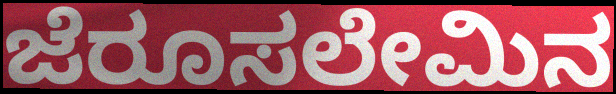
ಜೆರೂಸಲೇಮಿನ